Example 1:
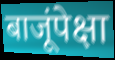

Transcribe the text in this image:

बाजूंपेक्षा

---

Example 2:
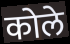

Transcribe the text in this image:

कोले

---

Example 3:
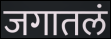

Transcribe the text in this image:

जगातलं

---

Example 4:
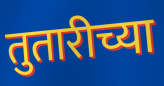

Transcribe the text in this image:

तुतारीच्या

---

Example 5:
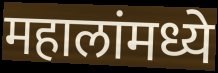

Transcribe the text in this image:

महालांमध्ये